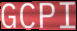
GCPI